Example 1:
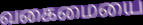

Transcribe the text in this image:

வகைமையை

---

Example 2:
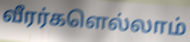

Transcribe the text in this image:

வீரர்களெல்லாம்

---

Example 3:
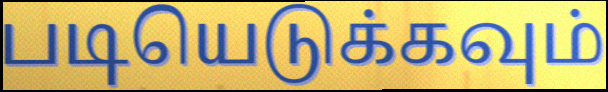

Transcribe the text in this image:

படியெடுக்கவும்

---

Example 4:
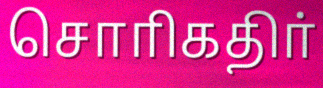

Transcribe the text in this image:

சொரிகதிர்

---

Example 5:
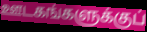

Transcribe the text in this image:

ஊடகங்களுக்குப்